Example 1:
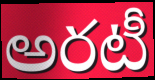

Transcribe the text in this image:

అరటీ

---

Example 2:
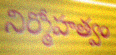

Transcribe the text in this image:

నిర్మోహత్వం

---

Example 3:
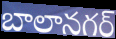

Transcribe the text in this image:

బాలానగర్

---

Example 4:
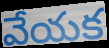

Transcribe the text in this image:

వేయక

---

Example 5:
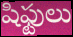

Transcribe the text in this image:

షిఫ్టులు